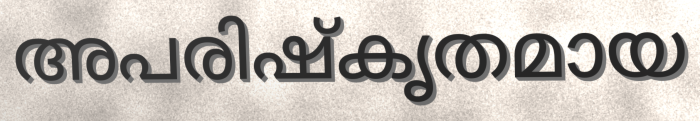
അപരിഷ്കൃതമായ